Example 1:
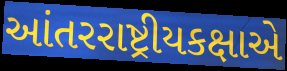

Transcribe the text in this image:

આંતરરાષ્ટ્રીયકક્ષાએ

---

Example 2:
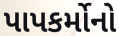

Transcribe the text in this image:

પાપકર્મોનો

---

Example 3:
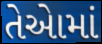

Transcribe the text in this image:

તેએામાં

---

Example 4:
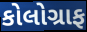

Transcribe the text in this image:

કોલોગ્રાફ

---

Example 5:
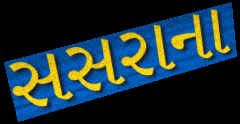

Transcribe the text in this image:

સસરાના